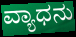
ವ್ಯಾಧನು